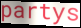
partys